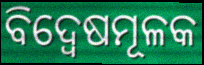
ବିଦ୍ୱେଷମୂଳକ